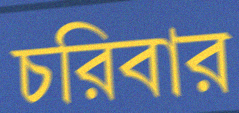
চরিবার